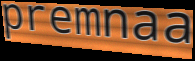
premnaa